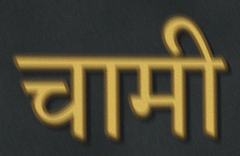
चामी